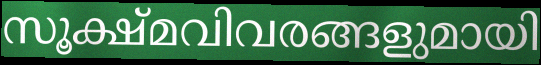
സൂക്ഷ്മവിവരങ്ങളുമായി